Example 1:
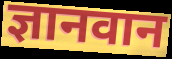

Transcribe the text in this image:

ज्ञानवान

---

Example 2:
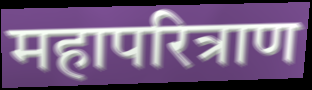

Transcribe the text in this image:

महापरित्राण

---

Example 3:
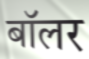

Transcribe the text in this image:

बॉलर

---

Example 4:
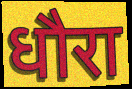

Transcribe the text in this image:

धौरा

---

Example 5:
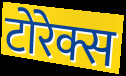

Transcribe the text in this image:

टोरेक्स